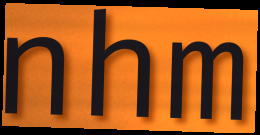
nhm